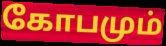
கோபமும்